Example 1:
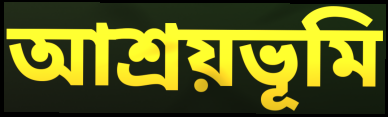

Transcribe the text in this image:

আশ্রয়ভূমি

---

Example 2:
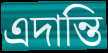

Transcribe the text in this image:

এদান্তি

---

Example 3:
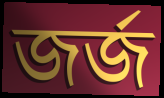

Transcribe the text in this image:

জর্জ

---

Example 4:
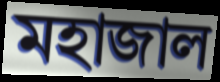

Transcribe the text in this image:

মহাজাল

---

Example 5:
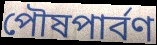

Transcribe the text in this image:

পৌষপার্বণ